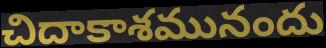
చిదాకాశమునందు